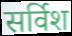
सर्विश